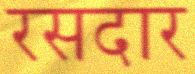
रसदार